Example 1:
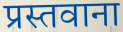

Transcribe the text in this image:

प्रस्तवाना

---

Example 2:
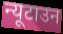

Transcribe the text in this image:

न्यूटाउन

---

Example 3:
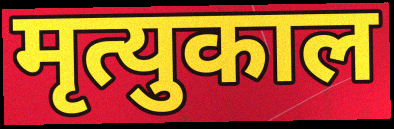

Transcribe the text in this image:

मृत्युकाल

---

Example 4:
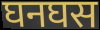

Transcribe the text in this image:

घनघस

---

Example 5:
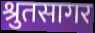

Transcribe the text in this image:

श्रुतसागर